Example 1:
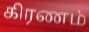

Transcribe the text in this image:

கிரணம்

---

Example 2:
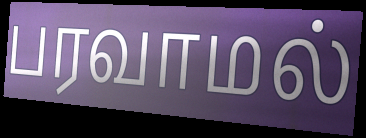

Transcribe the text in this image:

பரவாமல்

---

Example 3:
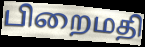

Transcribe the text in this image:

பிறைமதி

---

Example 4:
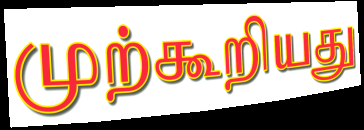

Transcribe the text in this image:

முற்கூறியது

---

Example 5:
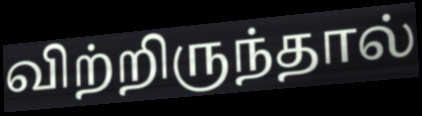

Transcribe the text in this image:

விற்றிருந்தால்